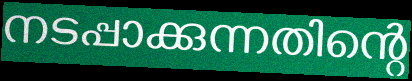
നടപ്പാക്കുന്നതിന്റെ